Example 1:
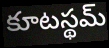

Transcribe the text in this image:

కూటస్థమ్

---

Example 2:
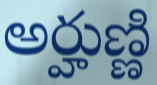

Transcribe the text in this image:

అర్హుణ్ణి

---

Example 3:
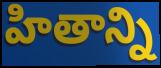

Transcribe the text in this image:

హితాన్ని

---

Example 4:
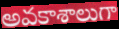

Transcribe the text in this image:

అవకాశాలుగా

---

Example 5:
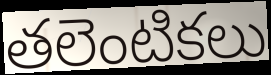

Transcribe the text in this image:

తలెంటికలు